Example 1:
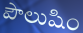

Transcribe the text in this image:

పౌలుషిం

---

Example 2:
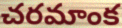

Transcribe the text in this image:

చరమాంక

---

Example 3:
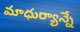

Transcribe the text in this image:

మాధుర్యాన్నే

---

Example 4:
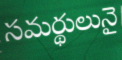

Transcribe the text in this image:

సమర్థులునై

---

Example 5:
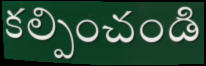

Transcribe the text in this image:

కల్పించండి